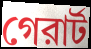
গেরার্ট